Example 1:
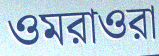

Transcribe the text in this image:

ওমরাওরা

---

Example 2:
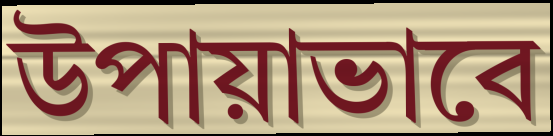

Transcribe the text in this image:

উপায়াভাবে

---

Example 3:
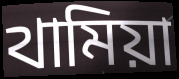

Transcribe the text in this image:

থামিয়া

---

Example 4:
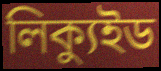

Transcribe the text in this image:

লিক্যুইড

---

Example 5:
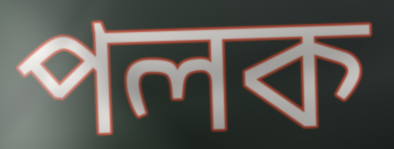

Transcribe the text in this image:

পলক